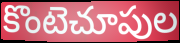
కొంటెచూపుల